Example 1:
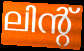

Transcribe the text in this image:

ലിന്റ്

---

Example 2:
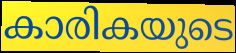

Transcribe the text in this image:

കാരികയുടെ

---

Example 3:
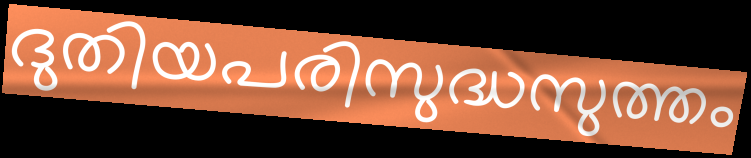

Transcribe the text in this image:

ദുതിയപരിസുദ്ധസുത്തം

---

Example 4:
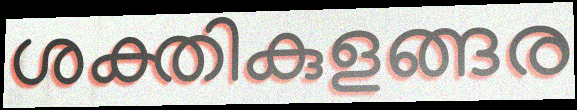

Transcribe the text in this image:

ശക്തികുളങ്ങര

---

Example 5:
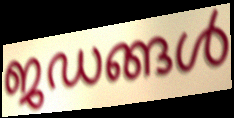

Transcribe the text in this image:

ജഡങ്ങൾ